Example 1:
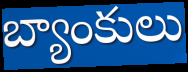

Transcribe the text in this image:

బ్యాంకులు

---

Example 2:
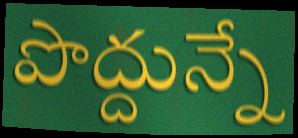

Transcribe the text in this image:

పొద్దున్నే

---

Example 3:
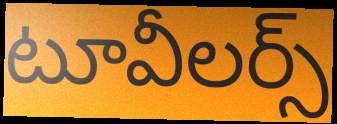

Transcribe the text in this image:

టూవీలర్స్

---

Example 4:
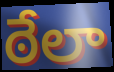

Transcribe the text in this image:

ఠేలా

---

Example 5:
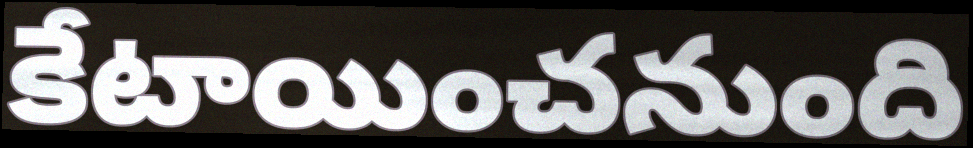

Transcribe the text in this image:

కేటాయించనుంది